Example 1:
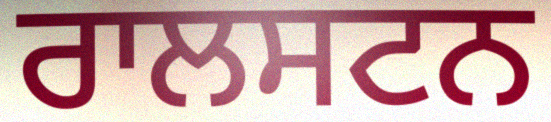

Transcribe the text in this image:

ਰਾਲਸਟਨ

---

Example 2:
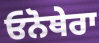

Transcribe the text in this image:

ਓਨੋਥੇਰਾ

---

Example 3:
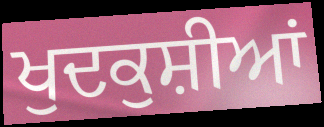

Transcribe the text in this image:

ਖੁਦਕੁਸ਼ੀਆਂ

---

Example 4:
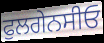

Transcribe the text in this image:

ਫੁਲਗੇਨਸੀਓ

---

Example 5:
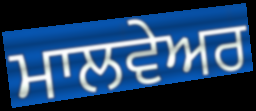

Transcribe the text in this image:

ਮਾਲਵੇਅਰ